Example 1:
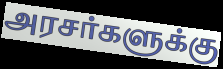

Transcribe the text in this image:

அரசர்களுக்கு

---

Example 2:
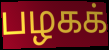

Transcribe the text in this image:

பழகக்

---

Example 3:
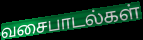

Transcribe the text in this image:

வசைபாடல்கள்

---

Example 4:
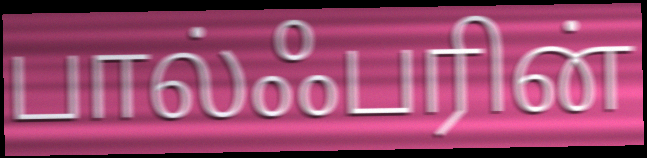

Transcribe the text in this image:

பால்ஃபரின்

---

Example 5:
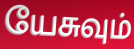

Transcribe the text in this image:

யேசுவும்